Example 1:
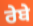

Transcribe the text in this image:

ਰੇਬੇ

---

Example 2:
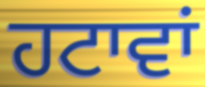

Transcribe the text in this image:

ਹਟਾਵਾਂ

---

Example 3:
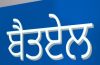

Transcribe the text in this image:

ਬੈਤਏਲ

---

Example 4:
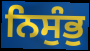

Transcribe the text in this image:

ਨਿਸੁੰਭੁ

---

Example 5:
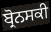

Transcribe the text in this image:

ਬ੍ਰੋਨਸਕੀ